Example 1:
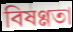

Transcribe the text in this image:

বিষণ্ণতা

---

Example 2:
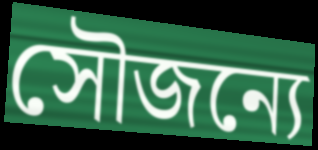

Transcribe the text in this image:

সৌজন্যে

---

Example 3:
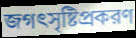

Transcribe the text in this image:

জগৎসৃষ্টিপ্রকরণ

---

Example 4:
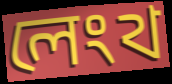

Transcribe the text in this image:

লেংথ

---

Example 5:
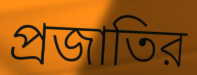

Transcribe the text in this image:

প্রজাতির